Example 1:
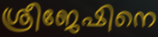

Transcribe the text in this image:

ശ്രീജേഷിനെ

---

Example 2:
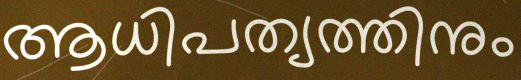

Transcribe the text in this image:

ആധിപത്യത്തിനും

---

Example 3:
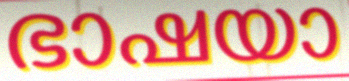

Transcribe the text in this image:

ഭാഷയാ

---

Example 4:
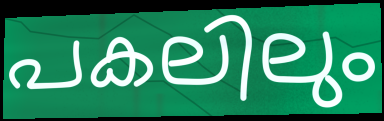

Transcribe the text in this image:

പകലിലും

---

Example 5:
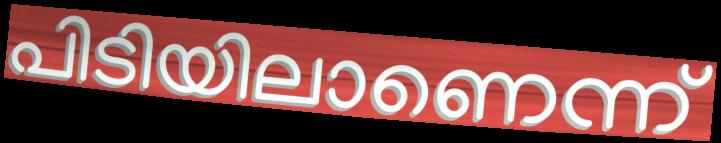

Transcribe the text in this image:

പിടിയിലാണെന്ന്